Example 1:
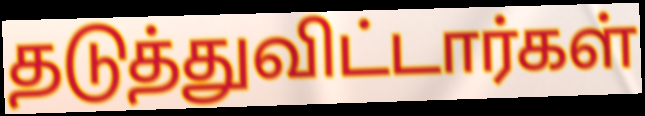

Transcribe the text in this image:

தடுத்துவிட்டார்கள்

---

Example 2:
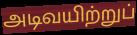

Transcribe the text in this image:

அடிவயிற்றுப்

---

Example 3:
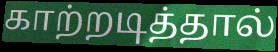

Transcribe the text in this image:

காற்றடித்தால்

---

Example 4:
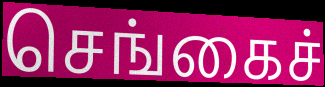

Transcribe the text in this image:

செங்கைச்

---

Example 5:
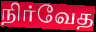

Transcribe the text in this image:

நிர்வேத